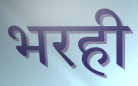
भरही